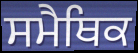
ਸਮੈਥਿਕ